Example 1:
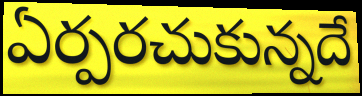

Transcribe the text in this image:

ఏర్పరచుకున్నదే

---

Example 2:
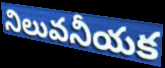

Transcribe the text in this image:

నిలువనీయక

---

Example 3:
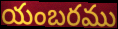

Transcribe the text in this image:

యంబరము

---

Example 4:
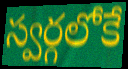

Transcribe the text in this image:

స్వర్గలోకే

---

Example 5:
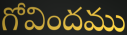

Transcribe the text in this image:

గోవిందము